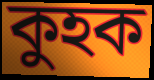
কুহক